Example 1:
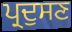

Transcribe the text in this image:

ਪ੍ਰਦੁਸਣ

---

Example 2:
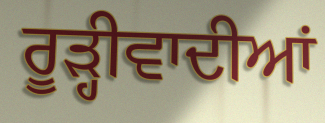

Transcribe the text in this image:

ਰੂੜ੍ਹੀਵਾਦੀਆਂ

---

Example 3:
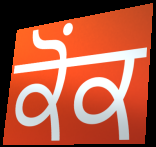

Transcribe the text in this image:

ਕੋਂਕ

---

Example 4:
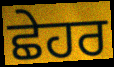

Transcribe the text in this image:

ਛੇਹਰ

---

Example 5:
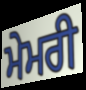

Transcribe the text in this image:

ਮੇਮਰੀ